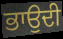
ਭਾਉਦੀ